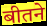
बीतने